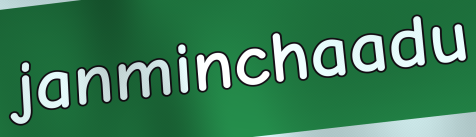
janminchaadu